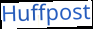
Huffpost